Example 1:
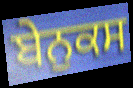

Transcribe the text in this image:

ਬੇਨੁਕਸ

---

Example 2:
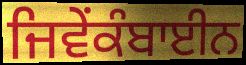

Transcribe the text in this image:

ਜਿਵੇਂਕੰਬਾਈਨ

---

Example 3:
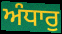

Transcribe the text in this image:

ਅੰਧਾਰੁ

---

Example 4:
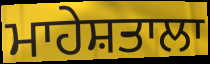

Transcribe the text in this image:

ਮਾਹੇਸ਼ਤਾਲਾ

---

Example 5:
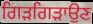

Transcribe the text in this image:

ਗਿੜਗਿੜਾਉਣ